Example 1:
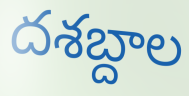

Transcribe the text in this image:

దశబ్దాల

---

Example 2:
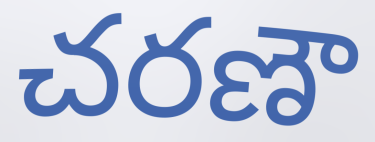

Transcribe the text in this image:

చరణౌ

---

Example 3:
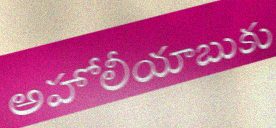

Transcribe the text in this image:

అహోలీయాబుకు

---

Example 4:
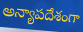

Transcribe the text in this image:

అన్యాపదేశంగా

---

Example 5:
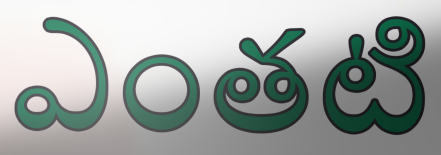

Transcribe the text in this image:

ఎంతటి